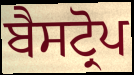
ਬੈਸਟ੍ਰੋਪ